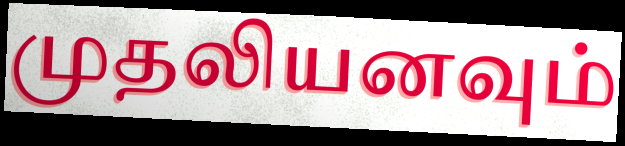
முதலியனவும்